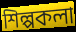
শিল্পকলা